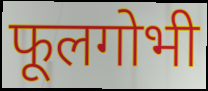
फूलगोभी